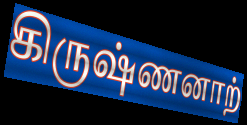
கிருஷ்ணனாற்